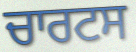
ਚਾਰਟਸ